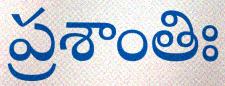
ప్రశాంతిః